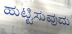
ಹುಟ್ಟಿಸುವುದು